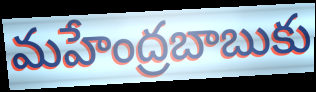
మహేంద్రబాబుకు